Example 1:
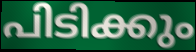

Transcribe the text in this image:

പിടിക്കും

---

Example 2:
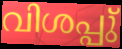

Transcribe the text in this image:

വിശപ്പു്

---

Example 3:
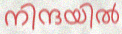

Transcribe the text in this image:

നിന്ദയിൽ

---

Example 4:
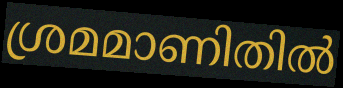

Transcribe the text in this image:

ശ്രമമാണിതിൽ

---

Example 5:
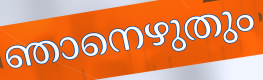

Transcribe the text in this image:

ഞാനെഴുതും